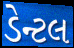
ડેન્ટલ